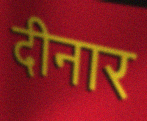
दीनार